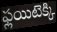
ఫ్లయిటెక్కి